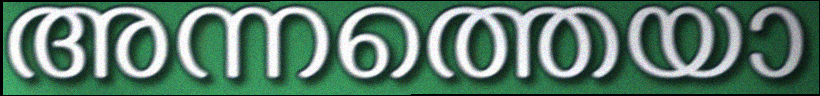
അന്നത്തെയാ